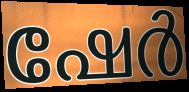
ഷേർ